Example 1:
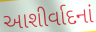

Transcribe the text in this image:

આશીર્વાદનાં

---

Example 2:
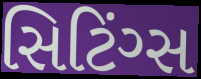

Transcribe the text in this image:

સિટિંગ્સ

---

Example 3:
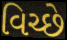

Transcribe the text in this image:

વિચ્છે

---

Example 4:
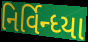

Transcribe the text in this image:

નિર્વિન્ધ્યા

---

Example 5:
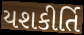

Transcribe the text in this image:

યશકીર્તિ